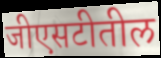
जीएसटीतील